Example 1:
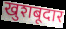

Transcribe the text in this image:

खुशबूदार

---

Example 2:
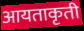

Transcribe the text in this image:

आयताकृती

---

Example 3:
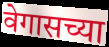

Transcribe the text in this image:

वेगासच्या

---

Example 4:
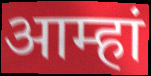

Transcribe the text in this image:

आम्हां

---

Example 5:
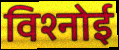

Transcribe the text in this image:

विश्नोई